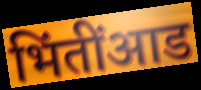
भिंतींआड